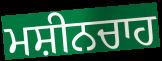
ਮਸ਼ੀਨਚਾਹ